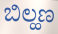
ಬಿಲ್ಹಣ